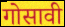
गोसावी